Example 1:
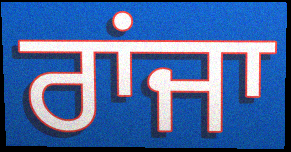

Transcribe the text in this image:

ਰਾਂਜਾ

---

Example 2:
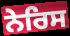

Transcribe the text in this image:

ਨੇਰਿਸ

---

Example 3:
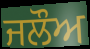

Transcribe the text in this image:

ਜਲੌਅ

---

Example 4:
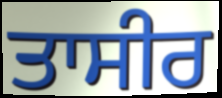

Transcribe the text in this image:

ਤਾਸੀਰ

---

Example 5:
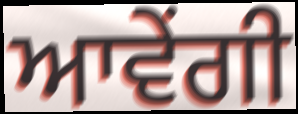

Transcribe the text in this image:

ਆਵੇਂਗੀ